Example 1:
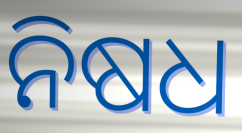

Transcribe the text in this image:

ନିଷଧ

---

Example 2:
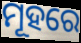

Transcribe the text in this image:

ମୂହରେ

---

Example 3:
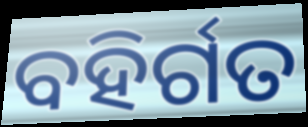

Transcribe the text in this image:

ବହିର୍ଗତ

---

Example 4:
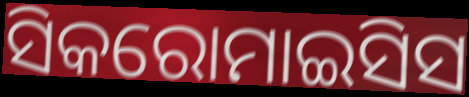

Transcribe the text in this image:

ସିକରୋମାଇସିସ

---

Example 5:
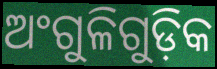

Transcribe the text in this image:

ଅଂଗୁଳିଗୁଡ଼ିକ